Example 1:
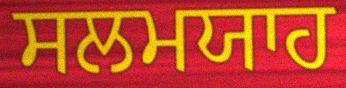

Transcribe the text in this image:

ਸਲਮਯਾਹ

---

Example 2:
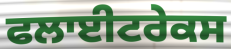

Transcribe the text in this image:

ਫਲਾਈਟਰੇਕਸ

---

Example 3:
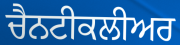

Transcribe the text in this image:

ਚੈਨਟੀਕਲੀਅਰ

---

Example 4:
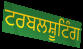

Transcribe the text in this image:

ਟਰਬਲਸ਼ੂਟਿੰਗ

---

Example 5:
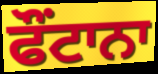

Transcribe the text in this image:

ਫੌਂਟਾਨਾ